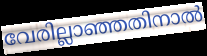
വേരില്ലാഞ്ഞതിനാൽ